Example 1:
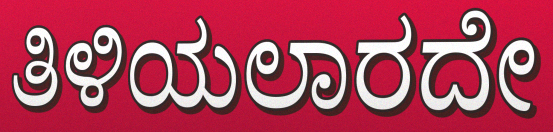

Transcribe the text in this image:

ತಿಳಿಯಲಾರದೇ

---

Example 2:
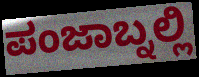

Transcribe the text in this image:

ಪಂಜಾಬ್ನಲ್ಲಿ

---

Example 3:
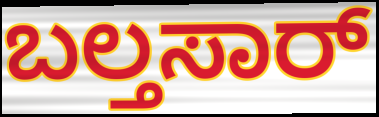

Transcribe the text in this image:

ಬಲ್ತಸಾರ್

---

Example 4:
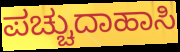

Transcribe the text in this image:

ಪಚ್ಚುದಾಹಾಸಿ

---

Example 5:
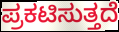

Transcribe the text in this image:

ಪ್ರಕಟಿಸುತ್ತದೆ